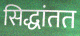
सिद्धांतत